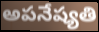
అపనేష్యతి